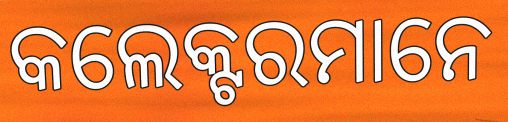
କଲେକ୍ଟରମାନେ